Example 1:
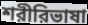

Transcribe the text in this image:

শরীরিভাষা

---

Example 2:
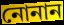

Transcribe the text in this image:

নোনান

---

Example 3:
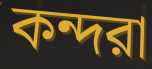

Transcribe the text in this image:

কন্দরা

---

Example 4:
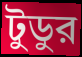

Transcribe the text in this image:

টুডুর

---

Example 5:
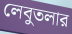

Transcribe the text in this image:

লেবুতলার